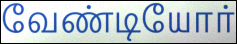
வேண்டியோர்